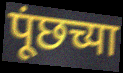
पूंछच्या